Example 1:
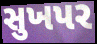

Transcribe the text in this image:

સુખપર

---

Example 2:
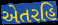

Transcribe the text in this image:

એતરહિ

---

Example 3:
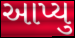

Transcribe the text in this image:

આપ્યુ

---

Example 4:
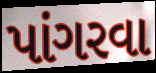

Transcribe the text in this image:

પાંગરવા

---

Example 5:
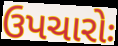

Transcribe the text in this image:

ઉપચારોઃ